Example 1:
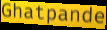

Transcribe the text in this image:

Ghatpande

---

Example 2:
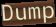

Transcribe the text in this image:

Dump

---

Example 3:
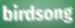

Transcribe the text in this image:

birdsong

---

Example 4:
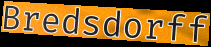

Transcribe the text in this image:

Bredsdorff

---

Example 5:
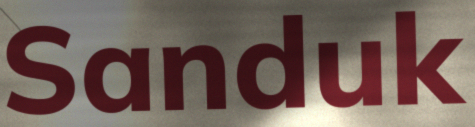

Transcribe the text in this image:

Sanduk